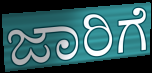
ಜಾರಿಗೆ